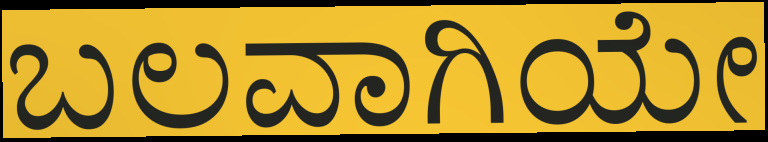
ಬಲವಾಗಿಯೇ